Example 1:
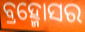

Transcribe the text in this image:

ବ୍ରହ୍ମୋସର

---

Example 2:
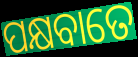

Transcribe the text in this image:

ପକ୍ଷବାତେ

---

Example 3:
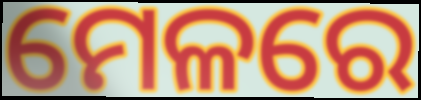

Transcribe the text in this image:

ମେଳରେ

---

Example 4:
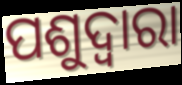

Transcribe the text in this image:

ପଶୁଦ୍ୱାରା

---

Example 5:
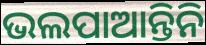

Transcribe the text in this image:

ଭଲପାଆନ୍ତିନି